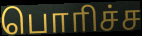
பொரிச்ச